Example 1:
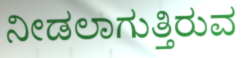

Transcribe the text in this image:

ನೀಡಲಾಗುತ್ತಿರುವ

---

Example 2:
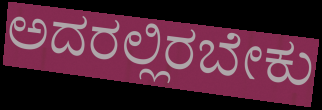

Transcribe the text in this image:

ಅದರಲ್ಲಿರಬೇಕು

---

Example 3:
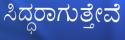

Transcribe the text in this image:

ಸಿದ್ಧರಾಗುತ್ತೇವೆ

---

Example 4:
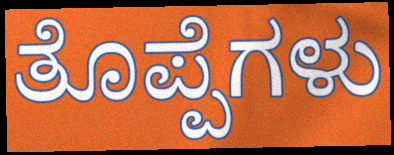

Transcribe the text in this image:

ತೊಪ್ಪೆಗಳು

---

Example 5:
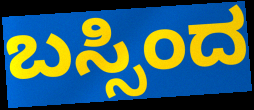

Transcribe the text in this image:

ಬಸ್ಸಿಂದ